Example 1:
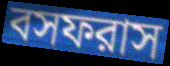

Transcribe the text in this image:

বসফরাস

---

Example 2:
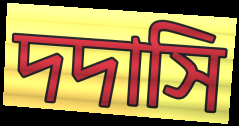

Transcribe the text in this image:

দদাসি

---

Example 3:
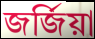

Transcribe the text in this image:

জর্জিয়া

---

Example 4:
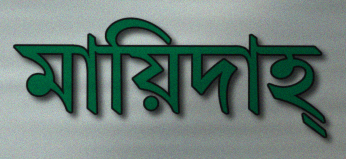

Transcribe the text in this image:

মায়িদাহ্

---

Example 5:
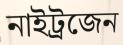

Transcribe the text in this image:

নাইট্রজেন